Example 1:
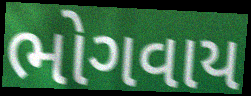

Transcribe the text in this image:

ભોગવાય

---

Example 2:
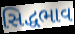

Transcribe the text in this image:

સિદ્ધભાવ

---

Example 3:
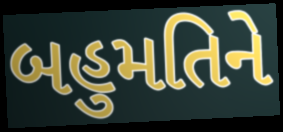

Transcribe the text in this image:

બહુમતિને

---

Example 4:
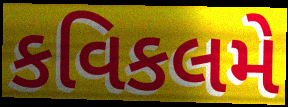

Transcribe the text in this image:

કવિકલમે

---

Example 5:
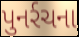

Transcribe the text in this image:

પુનર્રચના